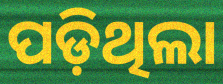
ପଡ଼ିଥିଲା